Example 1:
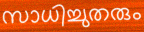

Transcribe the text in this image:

സാധിച്ചുതരും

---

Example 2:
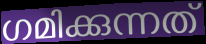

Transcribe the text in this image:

ഗമിക്കുന്നത്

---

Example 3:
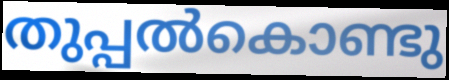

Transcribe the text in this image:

തുപ്പൽകൊണ്ടു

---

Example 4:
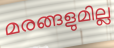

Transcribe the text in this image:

മരങ്ങളുമില്ല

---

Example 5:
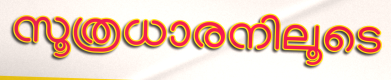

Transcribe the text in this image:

സൂത്രധാരനിലൂടെ